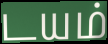
டயம்